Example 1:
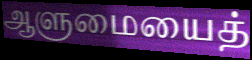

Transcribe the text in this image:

ஆளுமையைத்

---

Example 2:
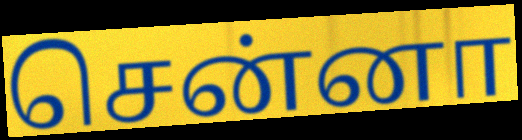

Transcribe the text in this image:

சென்னா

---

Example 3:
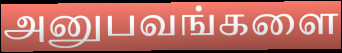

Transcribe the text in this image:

அனுபவங்களை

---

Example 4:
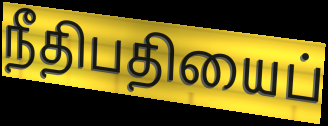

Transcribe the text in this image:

நீதிபதியைப்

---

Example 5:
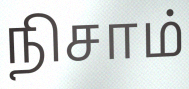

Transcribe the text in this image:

நிசாம்